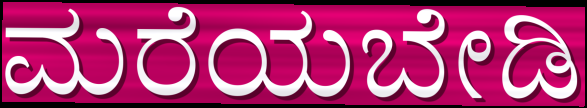
ಮರೆಯಬೇಡಿ